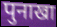
पुनाखा